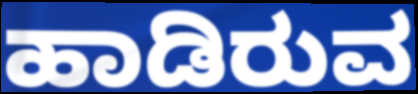
ಹಾಡಿರುವ